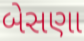
બેસણા